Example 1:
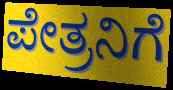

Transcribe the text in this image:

ಪೇತ್ರನಿಗೆ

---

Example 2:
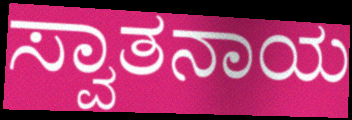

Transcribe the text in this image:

ಸ್ವಾತನಾಯ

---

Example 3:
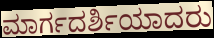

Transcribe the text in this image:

ಮಾರ್ಗದರ್ಶಿಯಾದರು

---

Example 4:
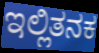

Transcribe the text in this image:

ಇಲ್ಲಿತನಕ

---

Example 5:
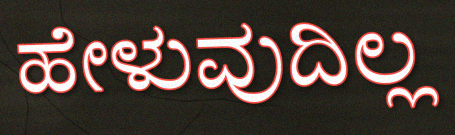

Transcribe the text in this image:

ಹೇಳುವುದಿಲ್ಲ